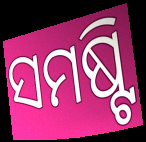
ସମଷ୍ଟି